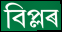
বিপ্লৰ